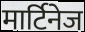
मार्टिनेज